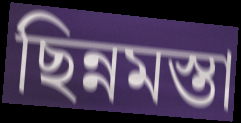
ছিন্নমস্তা